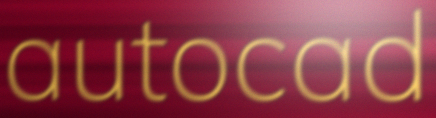
autocad